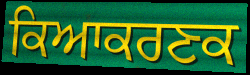
ਕਿਆਕਰਣਕ